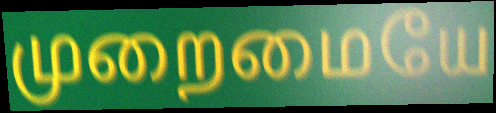
முறைமையே